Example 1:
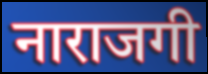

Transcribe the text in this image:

नाराजगी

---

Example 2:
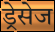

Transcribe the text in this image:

ड्रेसेज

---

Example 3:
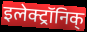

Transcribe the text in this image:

इलेक्ट्रॉनिक्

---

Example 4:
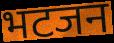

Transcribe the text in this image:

भटजन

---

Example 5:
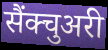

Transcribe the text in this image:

सैंक्चुअरी